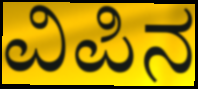
ವಿಪಿನ